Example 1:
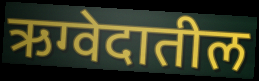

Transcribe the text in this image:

ऋग्वेदातील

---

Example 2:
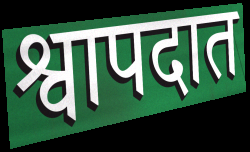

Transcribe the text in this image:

श्वापदात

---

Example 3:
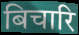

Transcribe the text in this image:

बिचारि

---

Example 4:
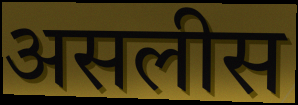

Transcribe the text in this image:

असलीस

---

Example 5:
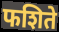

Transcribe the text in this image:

फशिते